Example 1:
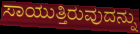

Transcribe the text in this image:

ಸಾಯುತ್ತಿರುವುದನ್ನು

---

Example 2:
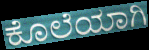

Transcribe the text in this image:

ಕೊಲೆಯಾಗಿ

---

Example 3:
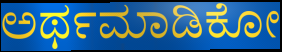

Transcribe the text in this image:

ಅರ್ಥಮಾಡಿಕೋ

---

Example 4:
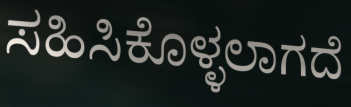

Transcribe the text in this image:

ಸಹಿಸಿಕೊಳ್ಳಲಾಗದೆ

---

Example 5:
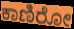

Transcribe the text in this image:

ಕಾಣಿರೋ